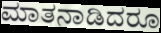
ಮಾತನಾಡಿದರೂ